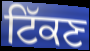
ਟਿੱਕਣ